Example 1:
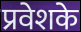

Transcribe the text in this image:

प्रवेशके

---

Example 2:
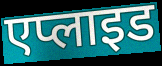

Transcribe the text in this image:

एप्लाइड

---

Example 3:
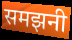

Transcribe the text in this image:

समझनी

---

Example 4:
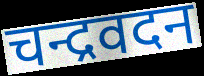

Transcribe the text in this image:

चन्द्रवदन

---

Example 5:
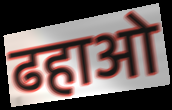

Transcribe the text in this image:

ढहाओ